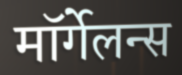
मॉर्गेलन्स